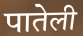
पातेली